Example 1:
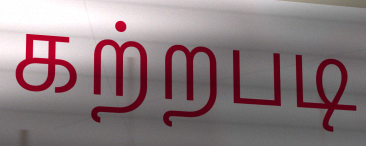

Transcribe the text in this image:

கற்றபடி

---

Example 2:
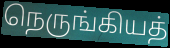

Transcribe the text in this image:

நெருங்கியத்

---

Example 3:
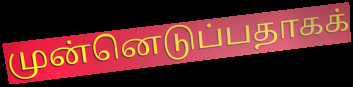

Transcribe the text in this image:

முன்னெடுப்பதாகக்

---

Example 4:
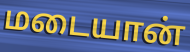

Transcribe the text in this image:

மடையான்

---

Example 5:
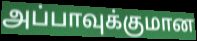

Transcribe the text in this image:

அப்பாவுக்குமான